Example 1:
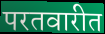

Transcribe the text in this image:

परतवारीत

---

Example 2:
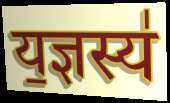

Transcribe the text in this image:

य॒ज्ञस्य॑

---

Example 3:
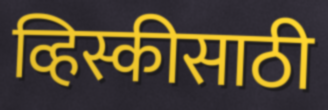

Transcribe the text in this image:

व्हिस्कीसाठी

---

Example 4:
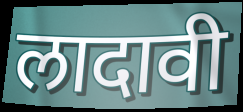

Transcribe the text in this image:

लादावी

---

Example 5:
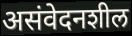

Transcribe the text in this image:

असंवेदनशील